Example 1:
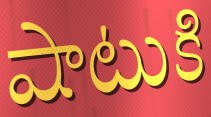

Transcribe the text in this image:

షాటుకి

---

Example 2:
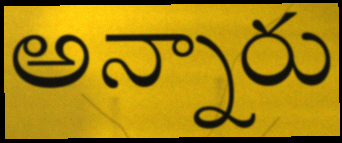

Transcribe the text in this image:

అన్నారు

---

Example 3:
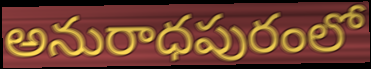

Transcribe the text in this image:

అనురాధపురంలో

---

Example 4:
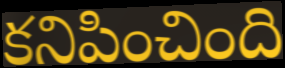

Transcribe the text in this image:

కనిపించింది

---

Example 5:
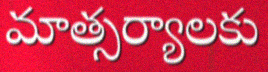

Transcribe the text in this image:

మాత్సర్యాలకు